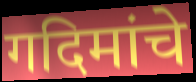
गदिमांचे